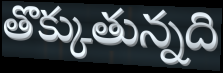
తొక్కుతున్నది